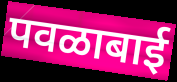
पवळाबाई